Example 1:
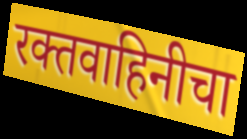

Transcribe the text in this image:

रक्तवाहिनीचा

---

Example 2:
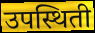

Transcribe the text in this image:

उपस्थिती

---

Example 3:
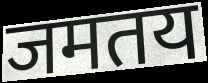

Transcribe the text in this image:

जमतय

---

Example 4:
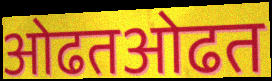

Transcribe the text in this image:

ओढतओढत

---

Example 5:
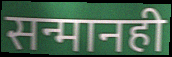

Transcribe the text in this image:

सन्मानही